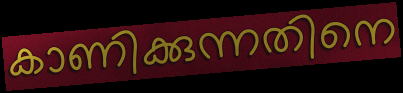
കാണിക്കുന്നതിനെ